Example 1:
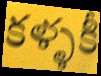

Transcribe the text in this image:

కళ్ళకీ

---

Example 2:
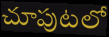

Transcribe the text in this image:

చూపుటలో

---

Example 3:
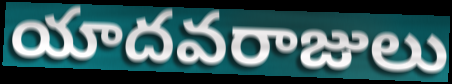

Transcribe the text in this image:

యాదవరాజులు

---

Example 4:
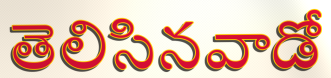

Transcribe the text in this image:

తెలిసినవాడో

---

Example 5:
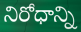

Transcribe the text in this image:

నిరోధాన్ని